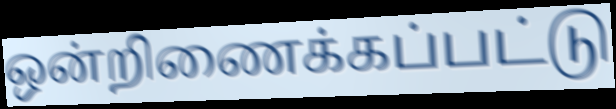
ஒன்றிணைக்கப்பட்டு